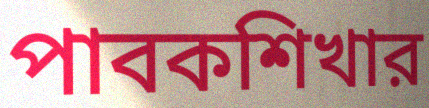
পাবকশিখার